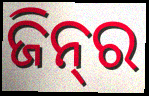
ଜିନ୍‌ର